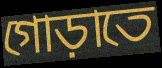
গোড়াতে